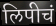
लिपीचं